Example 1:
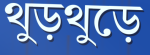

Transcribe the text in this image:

থুড়থুড়ে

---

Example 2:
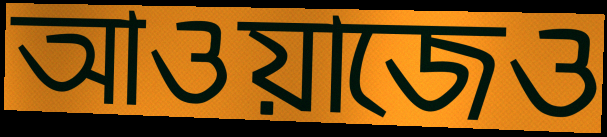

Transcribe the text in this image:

আওয়াজেও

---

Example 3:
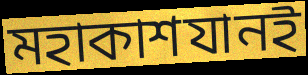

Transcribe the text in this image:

মহাকাশযানই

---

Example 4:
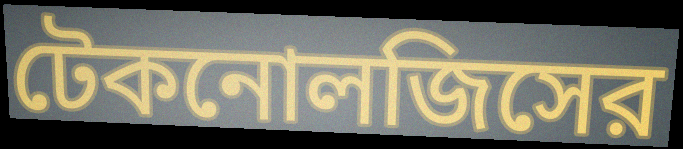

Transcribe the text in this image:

টেকনোলজিসের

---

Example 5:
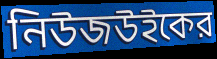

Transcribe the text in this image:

নিউজউইকের